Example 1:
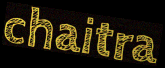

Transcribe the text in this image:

chaitra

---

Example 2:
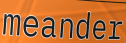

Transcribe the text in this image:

meander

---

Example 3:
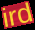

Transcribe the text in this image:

ird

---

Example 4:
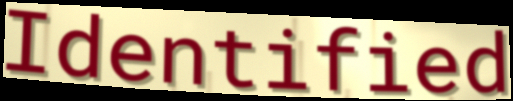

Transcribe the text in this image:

Identified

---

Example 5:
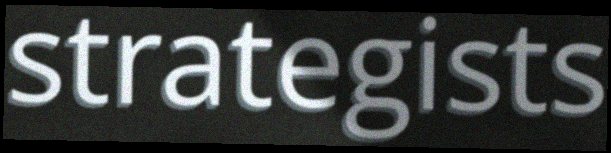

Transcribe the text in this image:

strategists